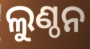
ଲୁଣ୍ଠନ